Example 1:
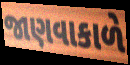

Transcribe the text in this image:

જાણવાકાળે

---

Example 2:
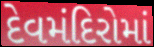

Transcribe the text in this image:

દેવમંદિરોમાં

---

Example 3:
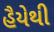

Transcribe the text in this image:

હૈયેથી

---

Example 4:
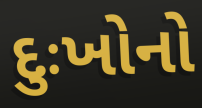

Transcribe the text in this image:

દુઃખોનો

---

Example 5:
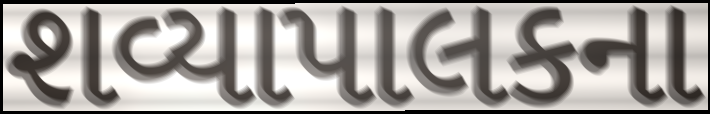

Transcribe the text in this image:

શવ્યાપાલકના